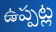
ఉప్పట్ల